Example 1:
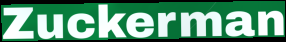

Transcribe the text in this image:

Zuckerman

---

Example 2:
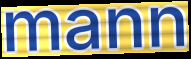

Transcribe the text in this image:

mann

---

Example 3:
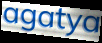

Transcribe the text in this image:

agatya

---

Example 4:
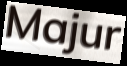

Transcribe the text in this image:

Majur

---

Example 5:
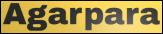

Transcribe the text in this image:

Agarpara